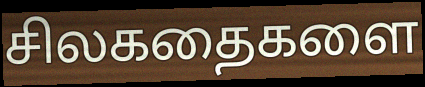
சிலகதைகளை